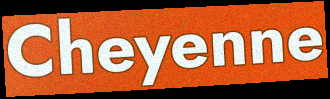
Cheyenne